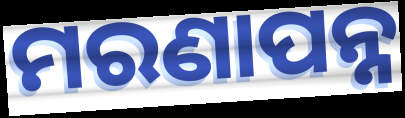
ମରଣାପନ୍ନ